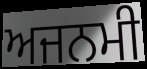
ਅਜਨਮੀ